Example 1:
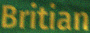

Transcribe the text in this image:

Britian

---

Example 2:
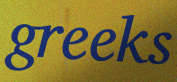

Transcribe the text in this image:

greeks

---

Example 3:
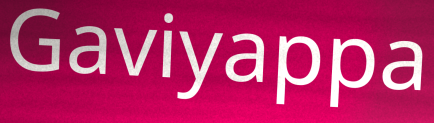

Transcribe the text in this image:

Gaviyappa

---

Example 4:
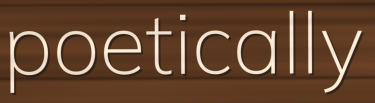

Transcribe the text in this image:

poetically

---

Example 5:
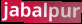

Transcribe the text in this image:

jabalpur